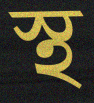
স্থ